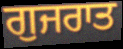
ਗੁਜਰਾਤ